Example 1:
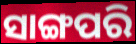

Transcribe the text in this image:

ସାଙ୍ଗପରି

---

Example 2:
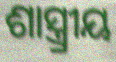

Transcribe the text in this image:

ଶାସ୍ତ୍ର୍ରୀୟ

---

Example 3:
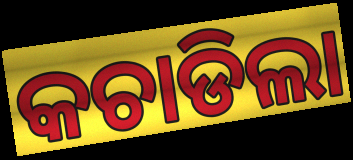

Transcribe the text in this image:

କଚାଡିଲା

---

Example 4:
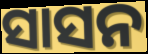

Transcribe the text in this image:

ସାସନ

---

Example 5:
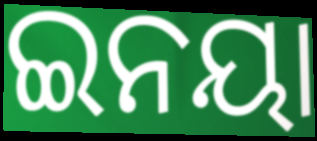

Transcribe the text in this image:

ଇନୟା